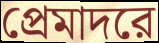
প্রেমাদরে